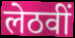
लेठवीं